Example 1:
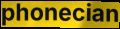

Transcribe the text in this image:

phonecian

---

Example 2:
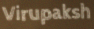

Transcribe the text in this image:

Virupaksh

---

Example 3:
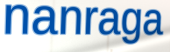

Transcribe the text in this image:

nanraga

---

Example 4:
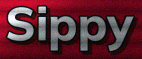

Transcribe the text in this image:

Sippy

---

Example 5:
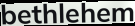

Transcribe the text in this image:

bethlehem